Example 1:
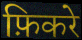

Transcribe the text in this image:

फ़िकरे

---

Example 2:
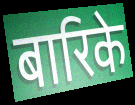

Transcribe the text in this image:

बारिके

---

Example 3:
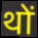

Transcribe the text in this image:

थों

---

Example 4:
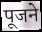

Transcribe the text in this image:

पूजने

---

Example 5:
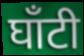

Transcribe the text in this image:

घाँटी